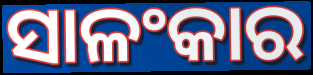
ସାଳଂକାର